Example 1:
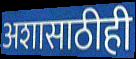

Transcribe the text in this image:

अशासाठीही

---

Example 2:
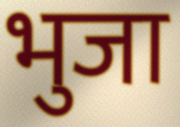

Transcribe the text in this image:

भुजा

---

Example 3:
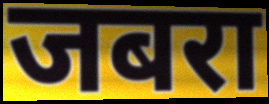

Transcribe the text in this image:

जबरा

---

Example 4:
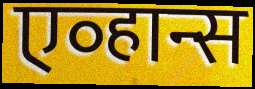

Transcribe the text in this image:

एव्हान्स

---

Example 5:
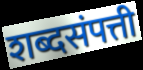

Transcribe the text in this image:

शब्दसंपत्ती